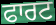
ਫਾਰਟ